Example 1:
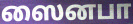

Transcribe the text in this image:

ஸைனபா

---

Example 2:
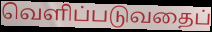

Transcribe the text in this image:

வெளிப்படுவதைப்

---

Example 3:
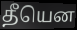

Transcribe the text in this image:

தீயென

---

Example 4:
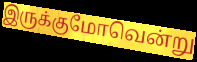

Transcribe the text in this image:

இருக்குமோவென்று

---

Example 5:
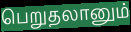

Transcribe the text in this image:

பெறுதலானும்